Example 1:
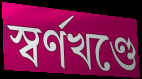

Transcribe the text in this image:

স্বর্ণখণ্ডে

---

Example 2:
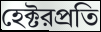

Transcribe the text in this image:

হেক্টরপ্রতি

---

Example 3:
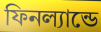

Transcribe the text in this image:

ফিনল্যান্ডে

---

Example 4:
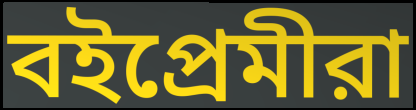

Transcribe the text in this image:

বইপ্রেমীরা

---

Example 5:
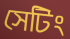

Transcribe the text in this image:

সেটিং